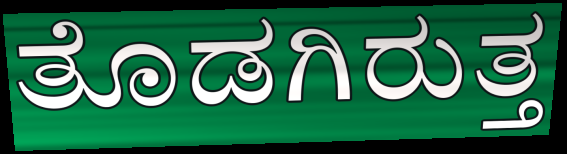
ತೊಡಗಿರುತ್ತ